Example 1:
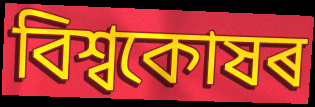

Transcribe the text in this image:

বিশ্বকোষৰ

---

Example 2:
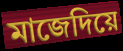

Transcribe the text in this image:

মাজেদিয়ে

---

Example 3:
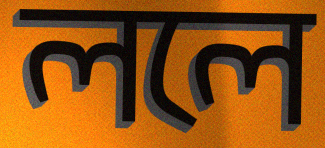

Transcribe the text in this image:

ললে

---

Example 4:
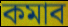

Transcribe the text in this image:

কমাব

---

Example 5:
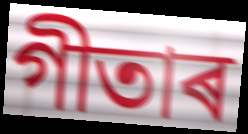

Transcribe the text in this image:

গীতাৰ